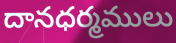
దానధర్మములు